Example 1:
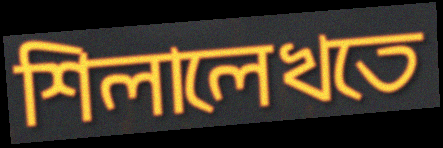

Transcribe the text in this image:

শিলালেখতে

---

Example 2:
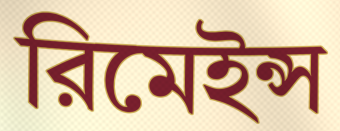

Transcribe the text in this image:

রিমেইন্স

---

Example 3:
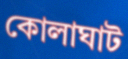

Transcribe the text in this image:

কোলাঘাট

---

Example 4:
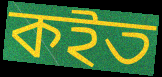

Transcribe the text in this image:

কইত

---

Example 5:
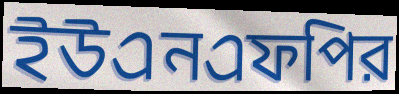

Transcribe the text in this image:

ইউএনএফপির